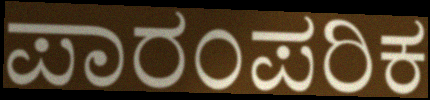
ಪಾರಂಪರಿಕ